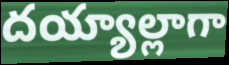
దయ్యాల్లాగా